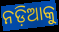
ନଡ଼ିଆକୁ